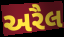
અરૈલ